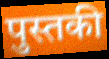
पुस्तकी